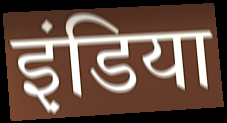
इ़ंडिया